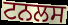
ਟਨਲਸ